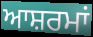
ਆਸ਼ਰਮਾਂ